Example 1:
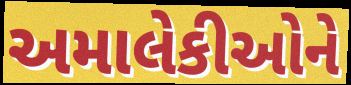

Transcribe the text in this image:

અમાલેકીઓને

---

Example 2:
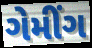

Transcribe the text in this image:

ગેમીંગ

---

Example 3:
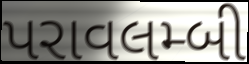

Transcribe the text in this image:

પરાવલમ્બી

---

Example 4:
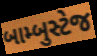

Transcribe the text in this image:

બામ્બુસ્ટેજ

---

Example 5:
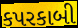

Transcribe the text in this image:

કપરકાબી